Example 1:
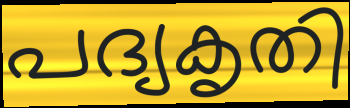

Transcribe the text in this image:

പദ്യകൃതി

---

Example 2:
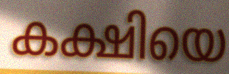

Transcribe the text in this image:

കക്ഷിയെ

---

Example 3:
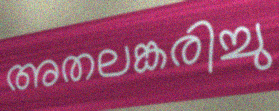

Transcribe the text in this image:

അതലങ്കരിച്ചു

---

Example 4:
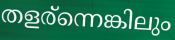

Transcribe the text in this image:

തളര്ന്നെങ്കിലും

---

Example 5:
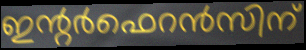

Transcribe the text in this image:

ഇന്റർഫെറൻസിന്